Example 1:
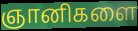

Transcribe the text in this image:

ஞானிகளை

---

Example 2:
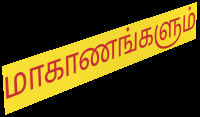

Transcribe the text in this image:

மாகாணங்களும்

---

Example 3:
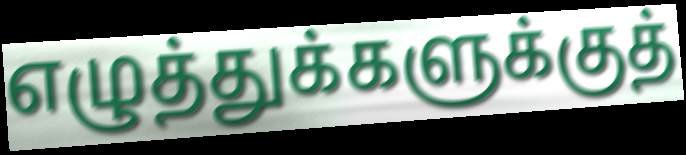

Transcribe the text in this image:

எழுத்துக்களுக்குத்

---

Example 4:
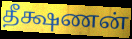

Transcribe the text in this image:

தீக்ஷணன்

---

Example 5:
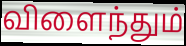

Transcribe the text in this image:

விளைந்தும்